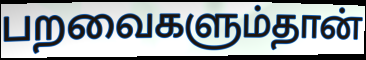
பறவைகளும்தான்